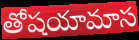
తోషయామాస